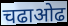
चढाओढ